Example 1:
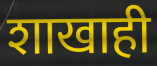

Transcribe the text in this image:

शाखाही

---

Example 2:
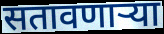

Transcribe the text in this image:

सतावणार्‍या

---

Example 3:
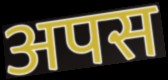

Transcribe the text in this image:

अपस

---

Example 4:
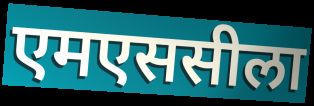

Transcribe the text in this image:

एमएससीला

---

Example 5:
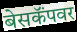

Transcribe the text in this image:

बेसकॅंपवर